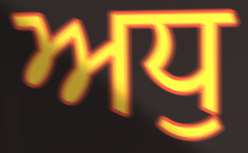
ਅਧੁ